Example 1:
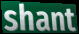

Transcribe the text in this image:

shant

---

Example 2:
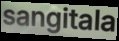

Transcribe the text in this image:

sangitala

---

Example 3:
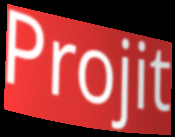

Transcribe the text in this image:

Projit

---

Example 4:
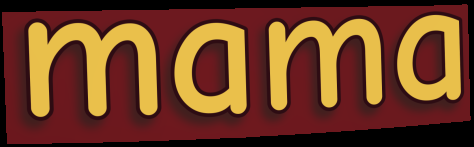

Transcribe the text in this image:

mama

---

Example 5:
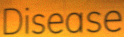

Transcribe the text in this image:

Disease